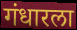
गंधारला